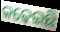
କଢ଼େଇଛି